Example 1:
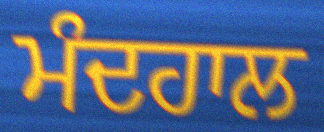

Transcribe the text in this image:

ਮੰਦਹਾਲ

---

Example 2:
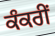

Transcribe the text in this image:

ਕੰਕਰੀਂ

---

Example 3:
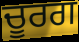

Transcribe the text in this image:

ਚੂਰਗ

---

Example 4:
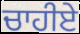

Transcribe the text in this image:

ਚਾਹੀਏ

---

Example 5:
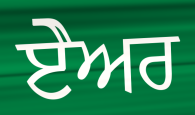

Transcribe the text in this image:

ਏੇਅਰ